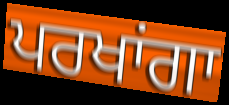
ਪਰਖਾਂਗਾ